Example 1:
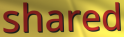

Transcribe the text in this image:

shared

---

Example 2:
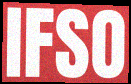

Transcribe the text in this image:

IFSO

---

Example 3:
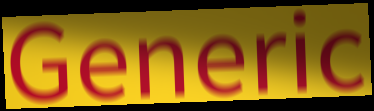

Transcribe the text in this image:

Generic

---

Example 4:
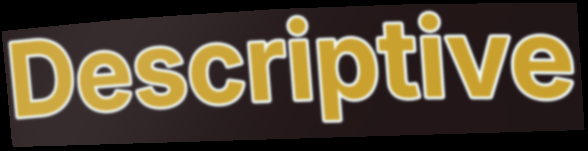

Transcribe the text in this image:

Descriptive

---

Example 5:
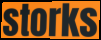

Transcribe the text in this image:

storks